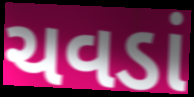
ચવડાં